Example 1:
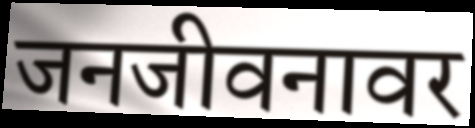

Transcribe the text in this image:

जनजीवनावर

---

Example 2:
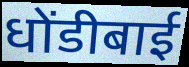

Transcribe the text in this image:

धोंडीबाई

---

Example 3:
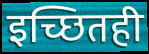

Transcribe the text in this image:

इच्छितही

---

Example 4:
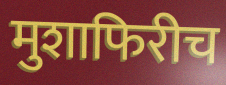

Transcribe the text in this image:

मुशाफिरीच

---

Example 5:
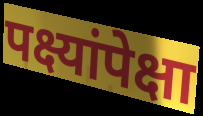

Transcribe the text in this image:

पक्ष्यांपेक्षा